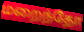
மறைந்தோ